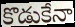
కొడుకేనా